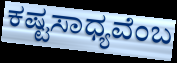
ಕಷ್ಟಸಾಧ್ಯವೆಂಬ